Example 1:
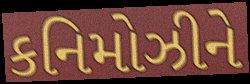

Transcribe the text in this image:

કનિમોઝીને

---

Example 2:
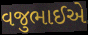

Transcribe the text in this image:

વજુભાઈએ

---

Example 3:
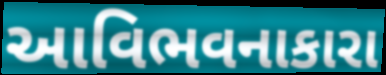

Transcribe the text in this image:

આવિભવનાકારા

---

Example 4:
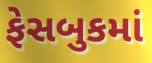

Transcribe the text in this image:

ફેસબુકમાં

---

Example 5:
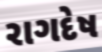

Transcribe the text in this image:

રાગદેષ